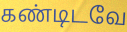
கண்டிடவே